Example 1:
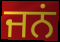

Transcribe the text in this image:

ਜਨਂ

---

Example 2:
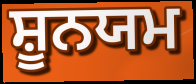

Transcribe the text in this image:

ਸ਼ੂਨਯਮ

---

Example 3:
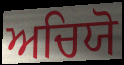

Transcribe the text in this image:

ਅਚਿਯੋ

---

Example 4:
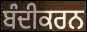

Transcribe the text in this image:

ਬੰਦੀਕਰਨ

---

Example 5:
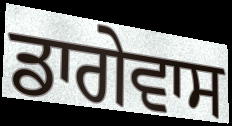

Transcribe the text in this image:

ਡਾਗੇਵਾਸ